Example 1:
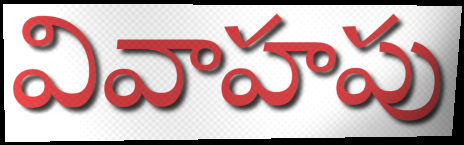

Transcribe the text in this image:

వివాహపు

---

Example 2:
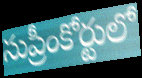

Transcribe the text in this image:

సుప్రీంకోర్టులో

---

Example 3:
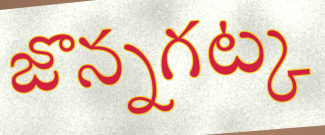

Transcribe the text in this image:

జొన్నగట్క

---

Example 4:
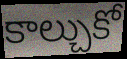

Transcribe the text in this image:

కాల్చుకో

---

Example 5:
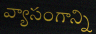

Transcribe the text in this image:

వ్యాసంగాన్ని